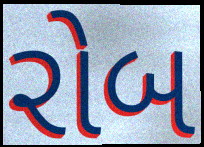
રોબ